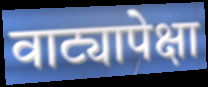
वाट्यापेक्षा